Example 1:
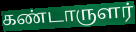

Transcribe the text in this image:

கண்டாருளர்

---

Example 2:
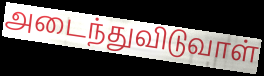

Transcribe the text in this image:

அடைந்துவிடுவாள்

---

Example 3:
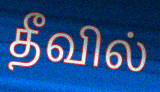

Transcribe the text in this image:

தீவில்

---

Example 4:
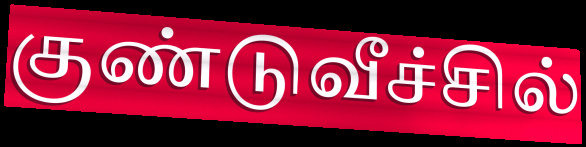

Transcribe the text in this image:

குண்டுவீச்சில்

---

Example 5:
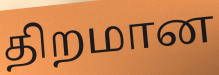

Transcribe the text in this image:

திறமான